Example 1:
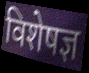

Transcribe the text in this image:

विशेषज्ञ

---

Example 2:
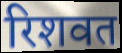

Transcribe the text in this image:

रिशवत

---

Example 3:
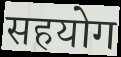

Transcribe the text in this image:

सहयोग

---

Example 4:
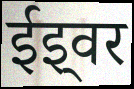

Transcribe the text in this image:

ईइ्वर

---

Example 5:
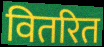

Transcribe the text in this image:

वितरित